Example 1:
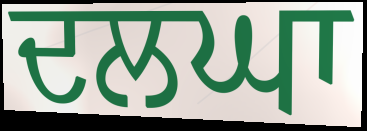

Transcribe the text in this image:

ਦਲਘਾ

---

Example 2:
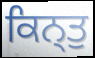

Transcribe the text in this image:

ਕਿਨ੍ਤੁ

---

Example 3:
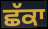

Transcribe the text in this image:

ਛੱਕਾ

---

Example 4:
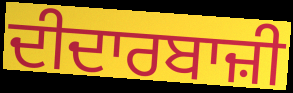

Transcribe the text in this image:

ਦੀਦਾਰਬਾਜ਼ੀ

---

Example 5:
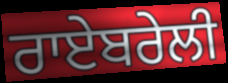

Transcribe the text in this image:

ਰਾਏਬਰੇਲੀ